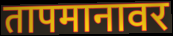
तापमानावर